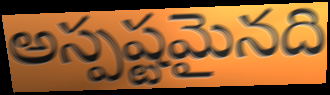
అస్పష్టమైనది